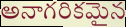
అనాగరికమైన